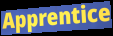
Apprentice